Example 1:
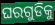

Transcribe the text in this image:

ଘରଗୁଡିକୁ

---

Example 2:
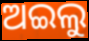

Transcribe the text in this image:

ଅଇଲୁ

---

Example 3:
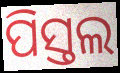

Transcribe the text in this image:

ପିସ୍ତଲ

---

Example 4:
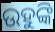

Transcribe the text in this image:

ଉହୁଙ୍କି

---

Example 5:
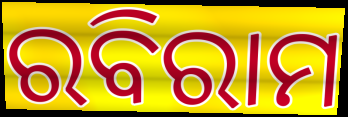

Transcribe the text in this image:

ରବିରାମ